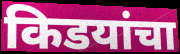
किडयांचा